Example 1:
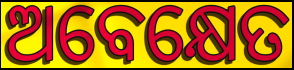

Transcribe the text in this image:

ଅବେକ୍ଷେତ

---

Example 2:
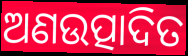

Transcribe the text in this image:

ଅଣଉତ୍ପାଦିତ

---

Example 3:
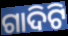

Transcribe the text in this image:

ଗାଦିଟି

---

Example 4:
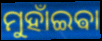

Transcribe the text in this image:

ମୁହାଁଇଵା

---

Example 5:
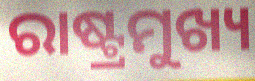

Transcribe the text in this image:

ରାଷ୍ଟ୍ରମୁଖ୍ୟ